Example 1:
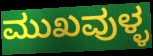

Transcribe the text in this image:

ಮುಖವುಳ್ಳ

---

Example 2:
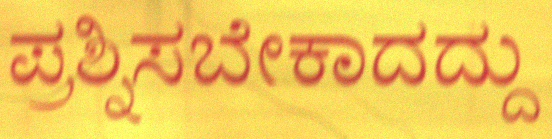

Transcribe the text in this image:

ಪ್ರಶ್ನಿಸಬೇಕಾದದ್ದು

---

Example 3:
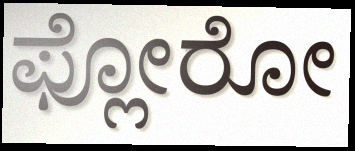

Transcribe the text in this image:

ಫ್ಲೋರೋ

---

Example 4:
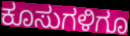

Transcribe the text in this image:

ಕೂಸುಗಳಿಗೂ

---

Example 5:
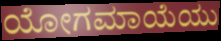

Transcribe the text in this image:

ಯೋಗಮಾಯೆಯು